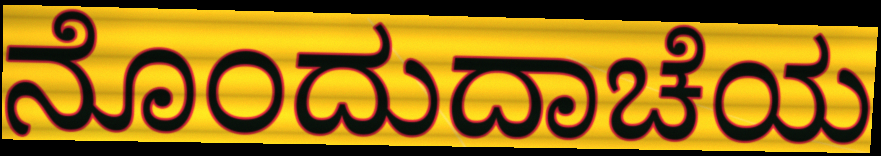
ನೊಂದುದಾಚೆಯ